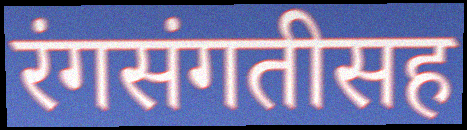
रंगसंगतीसह